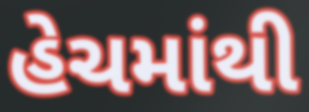
હેચમાંથી